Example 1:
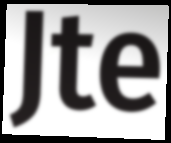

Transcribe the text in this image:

Jte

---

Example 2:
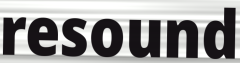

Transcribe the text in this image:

resound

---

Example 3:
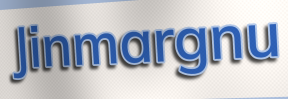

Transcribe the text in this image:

Jinmargnu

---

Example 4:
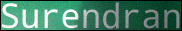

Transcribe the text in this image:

Surendran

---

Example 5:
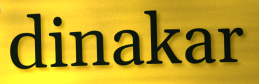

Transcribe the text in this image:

dinakar